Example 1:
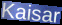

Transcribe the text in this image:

Kaisar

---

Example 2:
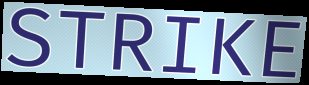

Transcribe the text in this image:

STRIKE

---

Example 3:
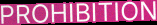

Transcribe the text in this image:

PROHIBITION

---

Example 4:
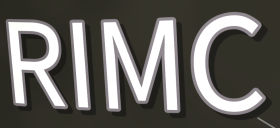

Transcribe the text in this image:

RIMC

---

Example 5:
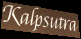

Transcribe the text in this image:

Kalpsutra